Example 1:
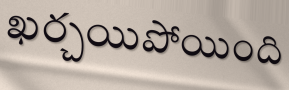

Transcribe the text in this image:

ఖర్చయిపోయింది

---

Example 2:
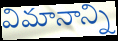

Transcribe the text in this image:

విమానాన్ని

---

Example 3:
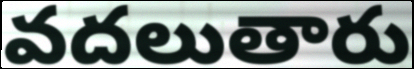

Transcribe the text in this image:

వదలుతారు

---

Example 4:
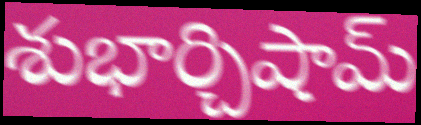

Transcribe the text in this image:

శుభార్చిషామ్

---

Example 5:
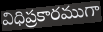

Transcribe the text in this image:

విధిప్రకారముగా